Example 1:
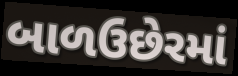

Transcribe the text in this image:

બાળઉછેરમાં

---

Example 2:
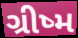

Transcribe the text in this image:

ગ્રીષ્મ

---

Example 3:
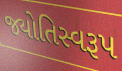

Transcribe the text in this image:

જ્યોતિસ્વરૂપ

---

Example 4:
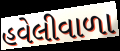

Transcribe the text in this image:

હવેલીવાળા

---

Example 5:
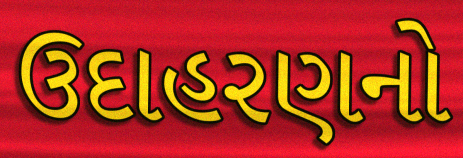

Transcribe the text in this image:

ઉદાહરણનો